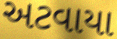
અટવાયા